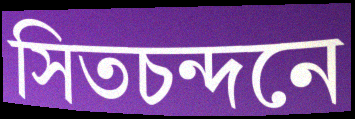
সিতচন্দনে